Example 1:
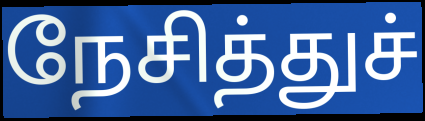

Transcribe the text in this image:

நேசித்துச்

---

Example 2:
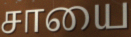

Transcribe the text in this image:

சாயை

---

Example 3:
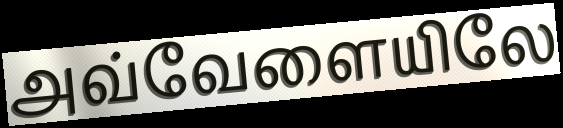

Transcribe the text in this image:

அவ்வேளையிலே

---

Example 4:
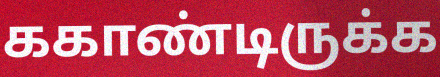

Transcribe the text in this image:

ககாண்டிருக்க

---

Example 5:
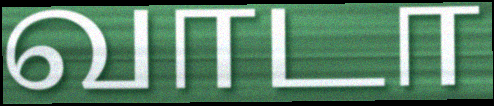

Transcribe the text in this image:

வாடா